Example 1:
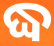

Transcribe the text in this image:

ଦ୍ଧ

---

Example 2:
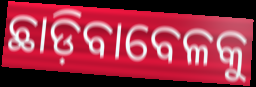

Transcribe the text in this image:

ଛାଡ଼ିବାବେଳକୁ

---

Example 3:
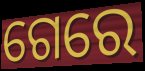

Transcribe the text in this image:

ଗେରେ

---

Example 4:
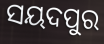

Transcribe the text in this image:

ସୟଦପୁର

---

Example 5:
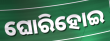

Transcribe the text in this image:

ଘୋରିହୋଇ